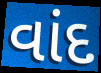
વાંદ